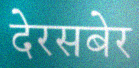
देरसबेर